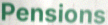
Pensions